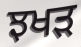
ਝਖੜ